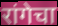
रांगेचा